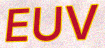
EUV